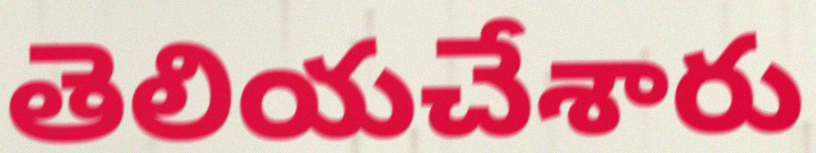
తెలియచేశారు